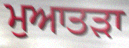
ਮੁਆਤੜਾ